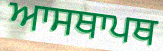
ਆਸਥਾਪਥ